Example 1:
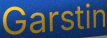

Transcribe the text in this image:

Garstin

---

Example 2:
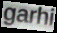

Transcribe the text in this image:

garhi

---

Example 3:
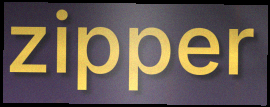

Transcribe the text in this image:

zipper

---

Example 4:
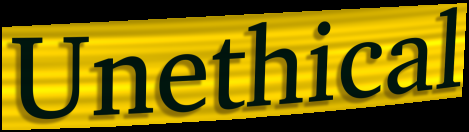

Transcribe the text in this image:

Unethical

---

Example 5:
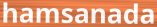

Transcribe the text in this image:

hamsanada